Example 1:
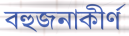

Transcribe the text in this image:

বহুজনাকীর্ণ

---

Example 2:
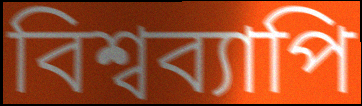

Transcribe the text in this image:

বিশ্বব্যাপি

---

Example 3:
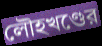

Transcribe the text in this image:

লৌহখণ্ডের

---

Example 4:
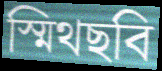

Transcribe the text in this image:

স্মিথছবি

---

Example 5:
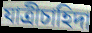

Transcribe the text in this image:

যাত্রীচাহিদা